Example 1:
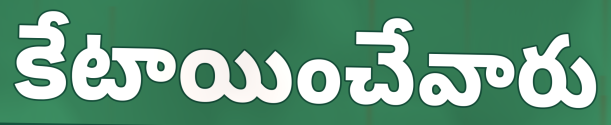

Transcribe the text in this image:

కేటాయించేవారు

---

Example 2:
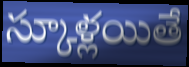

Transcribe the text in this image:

స్కూళ్లయితే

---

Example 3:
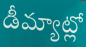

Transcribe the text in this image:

డీమ్యాట్లో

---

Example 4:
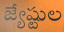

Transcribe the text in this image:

జ్యేష్టుల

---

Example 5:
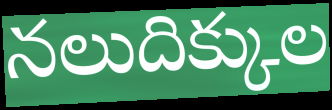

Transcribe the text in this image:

నలుదిక్కుల